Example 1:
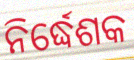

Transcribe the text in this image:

ନିର୍ଦ୍ଧେଶକ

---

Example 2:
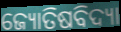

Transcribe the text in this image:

ଜ୍ୟୋତିଷବିଦ୍ୟା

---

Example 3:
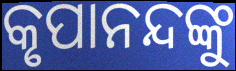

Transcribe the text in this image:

କୃପାନନ୍ଦଙ୍କୁ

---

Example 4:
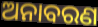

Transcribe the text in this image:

ଅନାବରଣ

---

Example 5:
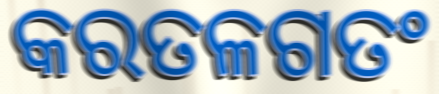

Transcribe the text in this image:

କରତଳଗତଂ